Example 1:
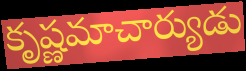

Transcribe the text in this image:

కృష్ణమాచార్యుడు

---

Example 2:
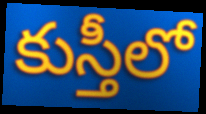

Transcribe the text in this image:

కుస్తీలో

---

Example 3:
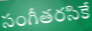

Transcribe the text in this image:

సంగీతరసికే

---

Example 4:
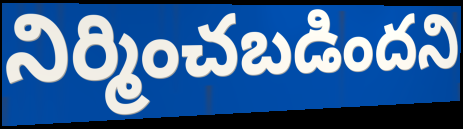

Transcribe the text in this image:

నిర్మించబడిందని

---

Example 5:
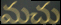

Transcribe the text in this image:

మచు